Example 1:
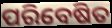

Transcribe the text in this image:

ପରିବେଷିତ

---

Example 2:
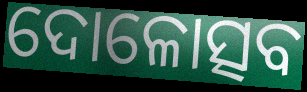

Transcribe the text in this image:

ଦୋଳୋତ୍ସବ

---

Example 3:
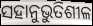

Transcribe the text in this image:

ସହାନୁଭୁତିଶୀଳ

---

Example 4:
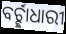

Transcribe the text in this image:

ବର୍ଚ୍ଛାଧାରୀ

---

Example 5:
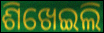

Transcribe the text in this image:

ଶିଖେଇଲି